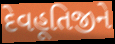
દેવહૂતિજીને